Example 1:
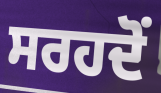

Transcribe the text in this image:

ਸਰਹਦੋਂ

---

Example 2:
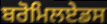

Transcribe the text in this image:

ਬਰੋਮਿਲਏਡਸ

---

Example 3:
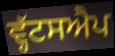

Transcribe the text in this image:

ਵ੍ਹੱਟਸਐਪ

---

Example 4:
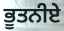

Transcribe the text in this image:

ਭੂਤਨੀਏ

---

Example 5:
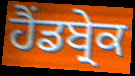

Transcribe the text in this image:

ਹੈਂਡਬ੍ਰੇਕ